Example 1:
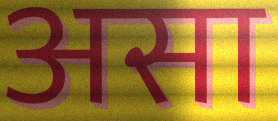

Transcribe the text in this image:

असा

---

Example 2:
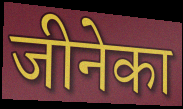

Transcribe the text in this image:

जीनेका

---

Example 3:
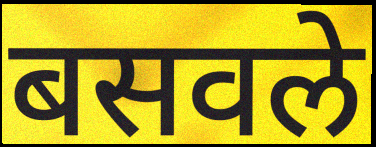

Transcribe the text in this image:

बसवले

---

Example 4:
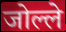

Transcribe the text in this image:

जोल्ले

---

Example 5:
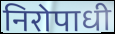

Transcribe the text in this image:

निरोपाधी